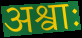
अश्वाः